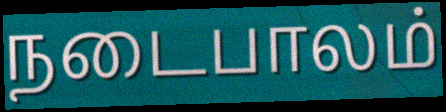
நடைபாலம்